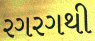
રગરગથી